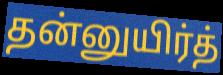
தன்னுயிர்த்